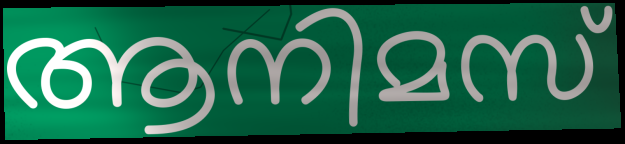
ആനിമസ്